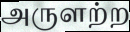
அருளற்ற